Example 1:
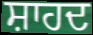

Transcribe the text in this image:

ਸ਼ਾਹਦ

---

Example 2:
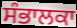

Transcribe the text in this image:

ਸੰਭਾਲਕਾ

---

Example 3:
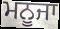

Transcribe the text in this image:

ਮਨੂਜਾ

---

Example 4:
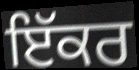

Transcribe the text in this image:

ਇੱਕਰ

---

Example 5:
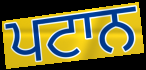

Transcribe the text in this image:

ਪਟਾਨ